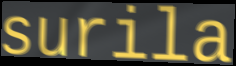
surila